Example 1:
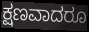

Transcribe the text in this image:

ಕ್ಷಣವಾದರೂ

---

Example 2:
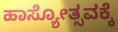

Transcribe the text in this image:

ಹಾಸ್ಯೋತ್ಸವಕ್ಕೆ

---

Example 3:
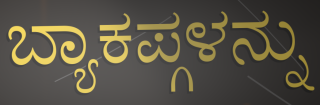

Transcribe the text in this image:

ಬ್ಯಾಕಪ್ಗಳನ್ನು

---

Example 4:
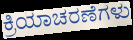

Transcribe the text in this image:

ಕ್ರಿಯಾಚರಣೆಗಳು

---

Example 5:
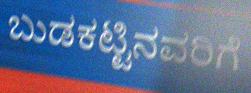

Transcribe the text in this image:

ಬುಡಕಟ್ಟಿನವರಿಗೆ